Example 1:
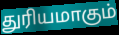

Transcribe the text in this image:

துரியமாகும்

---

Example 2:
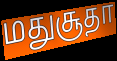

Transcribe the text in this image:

மதுசூதா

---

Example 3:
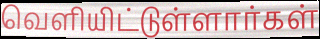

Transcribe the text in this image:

வெளியிட்டுள்ளார்கள்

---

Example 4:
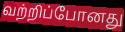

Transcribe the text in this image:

வற்றிப்போனது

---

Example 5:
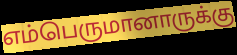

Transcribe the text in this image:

எம்பெருமானாருக்கு